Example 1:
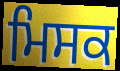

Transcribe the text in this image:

ਮਿਸਕ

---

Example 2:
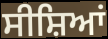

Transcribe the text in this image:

ਸੀਸ਼ਿਆਂ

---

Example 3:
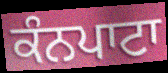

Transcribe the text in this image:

ਕੰਨਪਾਟਾ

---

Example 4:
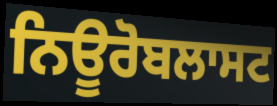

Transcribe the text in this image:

ਨਿਊਰੋਬਲਾਸਟ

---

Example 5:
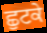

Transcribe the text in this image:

ਛੁਟਕੇ